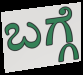
ಬಗ್ಗೆ